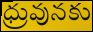
ధ్రువునకు